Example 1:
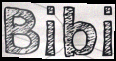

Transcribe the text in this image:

Bibi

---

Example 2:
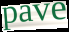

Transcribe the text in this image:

pave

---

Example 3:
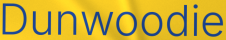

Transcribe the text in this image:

Dunwoodie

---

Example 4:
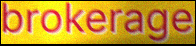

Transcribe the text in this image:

brokerage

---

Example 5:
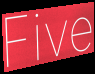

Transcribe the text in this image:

Five